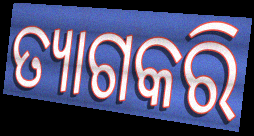
ତ୍ଯାଗକରି